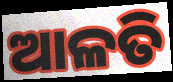
ଆଳତି